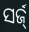
ସର୍ଜ୍